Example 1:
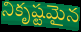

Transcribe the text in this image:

నికృష్టమైన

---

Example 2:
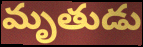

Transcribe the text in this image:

మృతుడు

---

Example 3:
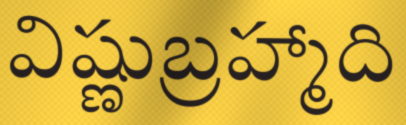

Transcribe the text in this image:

విష్ణుబ్రహ్మాది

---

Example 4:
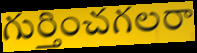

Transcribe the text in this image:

గుర్తించగలరా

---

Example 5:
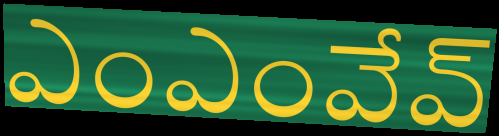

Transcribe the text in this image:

ఎంఎంవేవ్